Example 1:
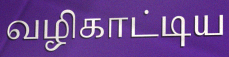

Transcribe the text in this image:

வழிகாட்டிய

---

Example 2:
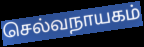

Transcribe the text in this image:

செல்வநாயகம்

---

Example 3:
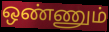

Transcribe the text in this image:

ஒண்ணும்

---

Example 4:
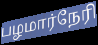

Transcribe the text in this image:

பழமார்நேரி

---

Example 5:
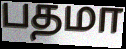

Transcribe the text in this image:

பதமா